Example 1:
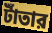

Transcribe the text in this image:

টাঁতার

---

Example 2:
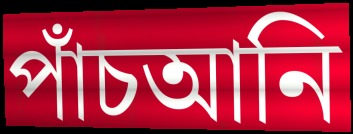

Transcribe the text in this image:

পাঁচআনি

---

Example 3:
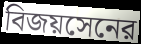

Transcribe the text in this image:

বিজয়সেনের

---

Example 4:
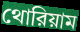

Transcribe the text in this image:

থোরিয়াম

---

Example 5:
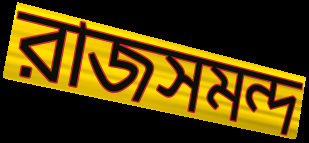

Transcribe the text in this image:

রাজসমন্দ